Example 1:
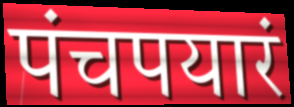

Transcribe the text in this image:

पंचपयारं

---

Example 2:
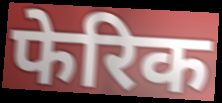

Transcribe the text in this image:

फेरिक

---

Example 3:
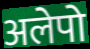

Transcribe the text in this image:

अलेपो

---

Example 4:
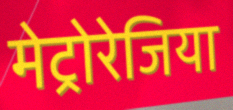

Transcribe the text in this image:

मेट्रोरेजिया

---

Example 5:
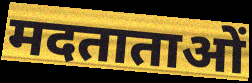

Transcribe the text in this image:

मदताताओं